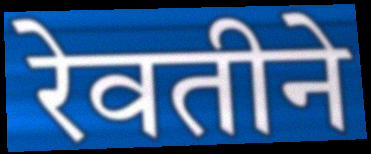
रेवतीने